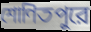
শোণিতপুরে